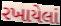
રખાયેલાં